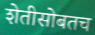
शेतीसोबतच